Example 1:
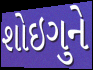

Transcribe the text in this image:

શોઇગુને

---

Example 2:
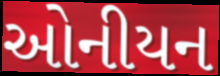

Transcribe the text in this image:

ઓનીયન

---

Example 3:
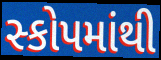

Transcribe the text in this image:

સ્કોપમાંથી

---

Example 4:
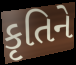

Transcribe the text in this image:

કૃતિને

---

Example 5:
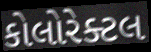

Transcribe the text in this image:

કોલોરેક્ટલ